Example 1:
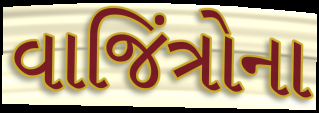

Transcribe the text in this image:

વાજિંત્રોના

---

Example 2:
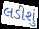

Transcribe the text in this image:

લડીશું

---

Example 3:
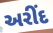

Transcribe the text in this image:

અરીંદ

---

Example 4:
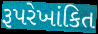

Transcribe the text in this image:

રૂપરેખાંકિત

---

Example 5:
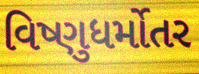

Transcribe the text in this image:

વિષ્ણુધર્મોતર